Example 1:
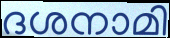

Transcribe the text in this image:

ദശനാമി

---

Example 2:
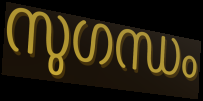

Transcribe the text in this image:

സുഗന്ധം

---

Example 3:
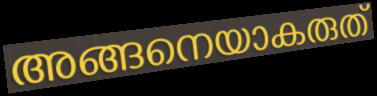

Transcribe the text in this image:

അങ്ങനെയാകരുത്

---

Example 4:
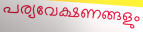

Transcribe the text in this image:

പര്യവേക്ഷണങ്ങളും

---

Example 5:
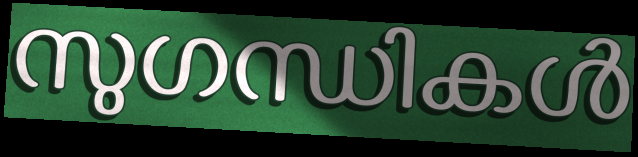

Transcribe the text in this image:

സുഗന്ധികൾ